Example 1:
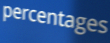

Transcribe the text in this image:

percentages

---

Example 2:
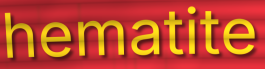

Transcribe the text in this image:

hematite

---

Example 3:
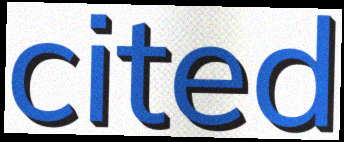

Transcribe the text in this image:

cited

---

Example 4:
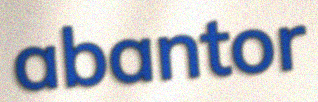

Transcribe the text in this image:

abantor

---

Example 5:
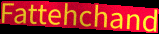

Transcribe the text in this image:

Fattehchand